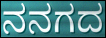
ನನಗದ